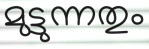
മുട്ടുന്നതും